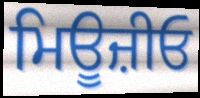
ਮਿਊਜ਼ੀਓ